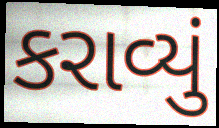
કરાવ્યું